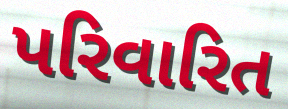
પરિવારિત